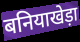
बनियाखेड़ा